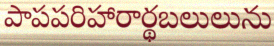
పాపపరిహారార్థబలులును